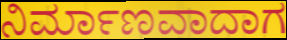
ನಿರ್ಮಾಣವಾದಾಗ